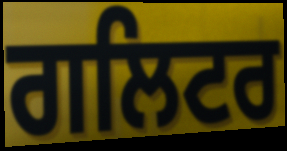
ਗਲਿਟਰ